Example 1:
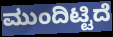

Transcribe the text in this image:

ಮುಂದಿಟ್ಟಿದೆ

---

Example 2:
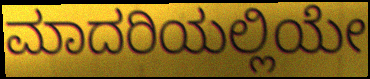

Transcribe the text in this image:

ಮಾದರಿಯಲ್ಲಿಯೇ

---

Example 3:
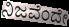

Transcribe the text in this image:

ನಿಜವೆಂದೇ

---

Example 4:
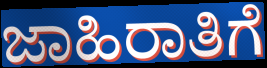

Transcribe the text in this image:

ಜಾಹಿರಾತಿಗೆ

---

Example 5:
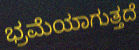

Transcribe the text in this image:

ಭ್ರಮೆಯಾಗುತ್ತದೆ